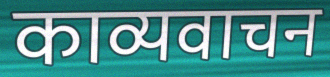
काव्यवाचन